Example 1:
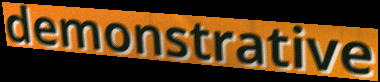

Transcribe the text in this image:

demonstrative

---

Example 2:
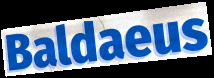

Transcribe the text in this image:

Baldaeus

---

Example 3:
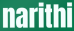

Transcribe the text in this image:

narithi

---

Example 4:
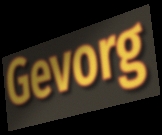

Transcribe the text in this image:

Gevorg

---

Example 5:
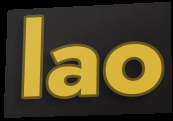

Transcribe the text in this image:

lao